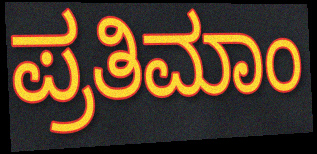
ಪ್ರತಿಮಾಂ